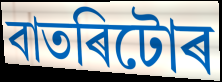
বাতৰিটোৰ